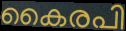
കൈരപി